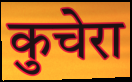
कुचेरा